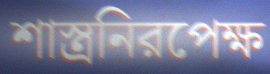
শাস্ত্রনিরপেক্ষ